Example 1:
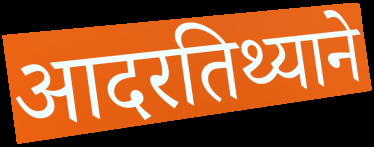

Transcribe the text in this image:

आदरतिथ्याने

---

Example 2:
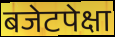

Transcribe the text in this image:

बजेटपेक्षा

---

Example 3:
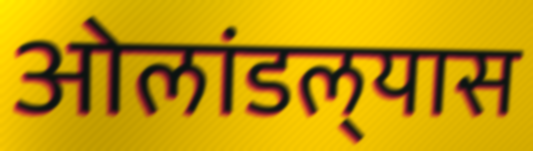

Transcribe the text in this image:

ओलांडल्यास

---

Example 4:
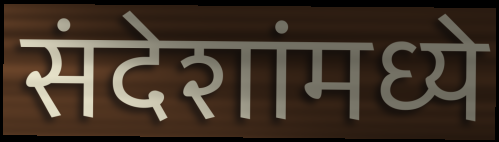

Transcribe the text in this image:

संदेशांमध्ये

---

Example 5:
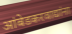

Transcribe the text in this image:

आंबेडकरवाद्यांना